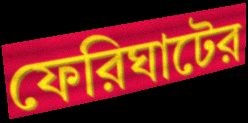
ফেরিঘাটের